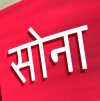
सोना